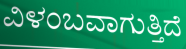
ವಿಳಂಬವಾಗುತ್ತಿದೆ